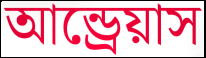
আন্ড্রেয়াস